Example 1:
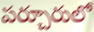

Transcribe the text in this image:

పర్చూరులో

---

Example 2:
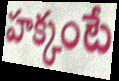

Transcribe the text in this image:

హక్కంటే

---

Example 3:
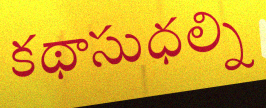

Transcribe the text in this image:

కథాసుధల్ని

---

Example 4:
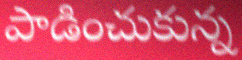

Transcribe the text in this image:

పాడించుకున్న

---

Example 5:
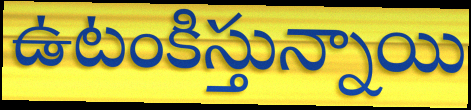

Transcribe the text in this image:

ఉటంకిస్తున్నాయి